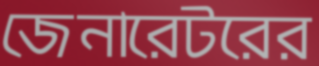
জেনারেটরের